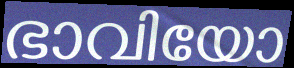
ഭാവിയോ